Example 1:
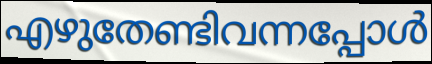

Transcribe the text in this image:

എഴുതേണ്ടിവന്നപ്പോൾ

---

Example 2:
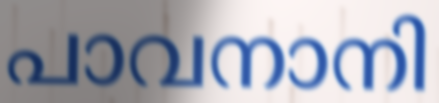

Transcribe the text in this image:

പാവനാനി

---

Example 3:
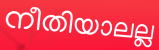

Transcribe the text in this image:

നീതിയാലല്ല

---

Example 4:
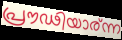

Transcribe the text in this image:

പ്രൗഢിയാര്ന്ന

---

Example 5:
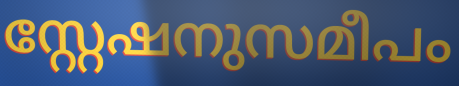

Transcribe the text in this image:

സ്റ്റേഷനുസമീപം